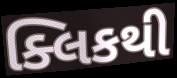
ક્લિકથી